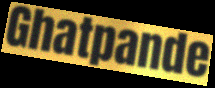
Ghatpande